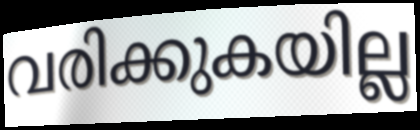
വരിക്കുകയില്ല